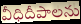
వీధిదీపాలను